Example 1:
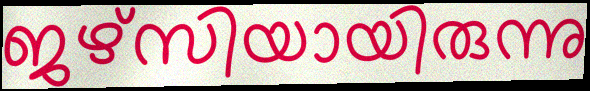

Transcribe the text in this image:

ജഴ്സിയായിരുന്നു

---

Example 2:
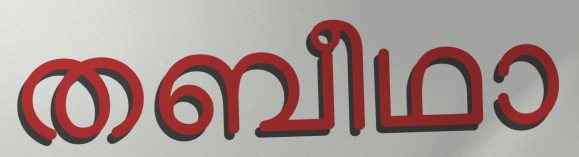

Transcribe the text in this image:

തബീഥാ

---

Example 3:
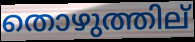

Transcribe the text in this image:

തൊഴുത്തില്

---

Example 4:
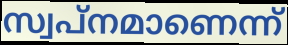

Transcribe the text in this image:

സ്വപ്നമാണെന്ന്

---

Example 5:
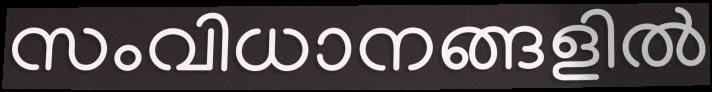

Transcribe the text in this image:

സംവിധാനങ്ങളിൽ